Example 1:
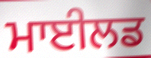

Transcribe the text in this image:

ਮਾਈਲਡ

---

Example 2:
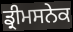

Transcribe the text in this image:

ਡ੍ਰੀਮਸਨੇਕ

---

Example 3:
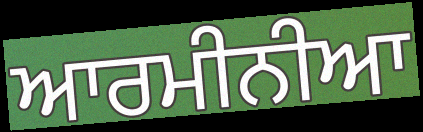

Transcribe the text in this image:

ਆਰਮੀਨੀਆ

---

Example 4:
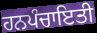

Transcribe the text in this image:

ਹਨਪੰਚਾਇਤੀ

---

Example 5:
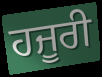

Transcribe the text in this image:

ਹਜੂਰੀ